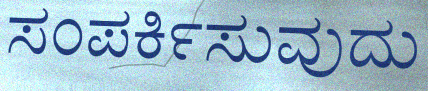
ಸಂಪರ್ಕಿಸುವುದು